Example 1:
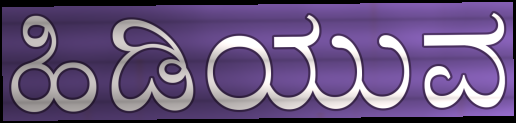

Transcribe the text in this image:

ಹಿಡಿಯುವ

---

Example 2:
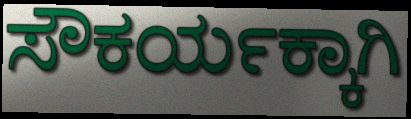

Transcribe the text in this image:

ಸೌಕರ್ಯಕ್ಕಾಗಿ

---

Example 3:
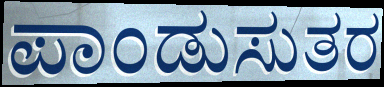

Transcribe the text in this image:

ಪಾಂಡುಸುತರ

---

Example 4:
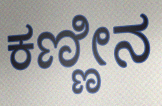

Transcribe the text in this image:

ಕಣ್ಣೀನ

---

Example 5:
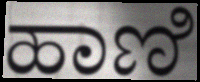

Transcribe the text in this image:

ಹಾಣಿ